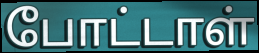
போட்டாள்